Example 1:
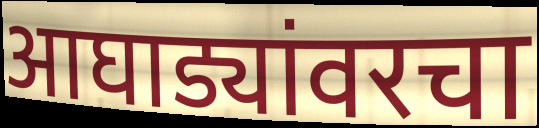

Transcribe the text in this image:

आघाड्यांवरचा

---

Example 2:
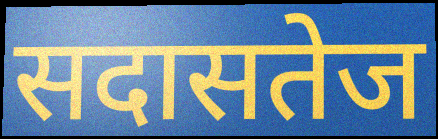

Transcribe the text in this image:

सदासतेज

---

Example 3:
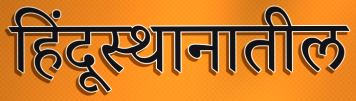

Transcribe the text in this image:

हिंदूस्थानातील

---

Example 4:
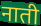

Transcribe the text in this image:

नाती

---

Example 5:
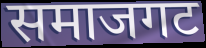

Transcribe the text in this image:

समाजगट